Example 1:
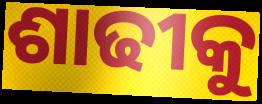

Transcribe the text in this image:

ଶାଢୀକୁ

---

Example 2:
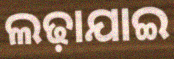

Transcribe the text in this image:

ଲଢ଼ାଯାଇ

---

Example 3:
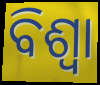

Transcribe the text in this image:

ବିଶ୍ବା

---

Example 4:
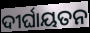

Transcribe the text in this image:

ଦୀର୍ଘାୟତନ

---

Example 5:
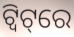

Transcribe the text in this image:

ଟ୍ବିଟ୍‌ରେ